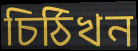
চিঠিখন